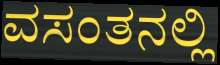
ವಸಂತನಲ್ಲಿ